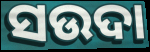
ସଉଦା